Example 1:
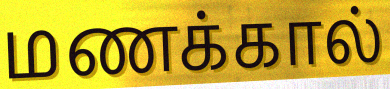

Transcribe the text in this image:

மணக்கால்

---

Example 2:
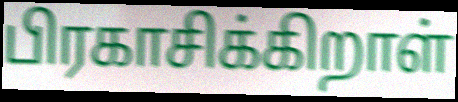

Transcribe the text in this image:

பிரகாசிக்கிறாள்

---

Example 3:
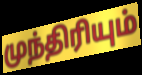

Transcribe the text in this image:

முந்திரியும்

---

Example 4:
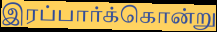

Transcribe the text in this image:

இரப்பார்க்கொன்று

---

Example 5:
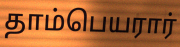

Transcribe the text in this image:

தாம்பெயரார்